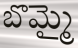
బొమ్మై